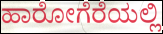
ಹಾರೋಗೆರೆಯಲ್ಲಿ